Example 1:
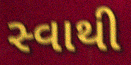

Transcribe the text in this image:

સ્વાથી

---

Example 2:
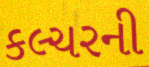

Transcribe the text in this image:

કલ્ચરની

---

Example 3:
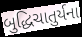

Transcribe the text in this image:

બુદ્ધિચાતુર્યના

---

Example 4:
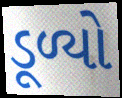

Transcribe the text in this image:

ડૂળ્યો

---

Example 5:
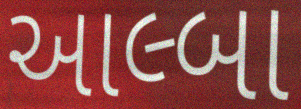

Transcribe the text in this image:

આલ્બા